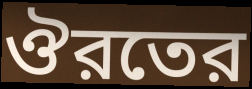
ঔরতের